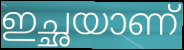
ഇച്ഛയാണ്